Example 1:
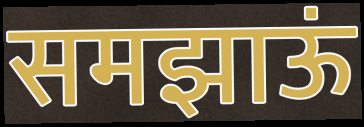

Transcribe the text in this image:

समझाऊं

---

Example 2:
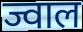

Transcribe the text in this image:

ज्वाल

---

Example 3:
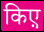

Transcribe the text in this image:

किए़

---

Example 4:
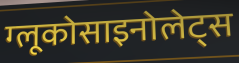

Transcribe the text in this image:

ग्लूकोसाइनोलेट्स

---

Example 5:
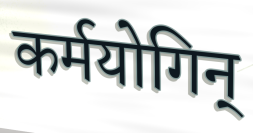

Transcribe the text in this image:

कर्मयोगिन्